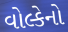
વોલ્કેનો